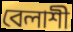
বেলাশী